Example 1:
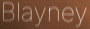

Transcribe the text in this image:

Blayney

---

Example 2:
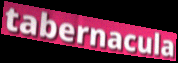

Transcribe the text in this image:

tabernacula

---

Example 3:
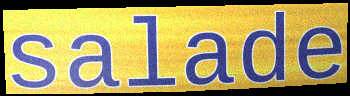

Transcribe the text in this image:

salade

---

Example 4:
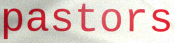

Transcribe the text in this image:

pastors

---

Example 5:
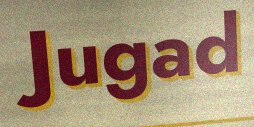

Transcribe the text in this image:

Jugad